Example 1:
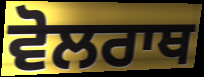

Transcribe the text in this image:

ਵੋਲਰਾਥ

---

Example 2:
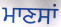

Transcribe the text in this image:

ਮਾਣਸਾਂ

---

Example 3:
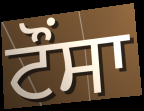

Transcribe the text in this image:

ਟੌਂਸਾ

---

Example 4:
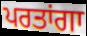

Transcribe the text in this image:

ਪਰਤਾਂਗਾ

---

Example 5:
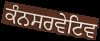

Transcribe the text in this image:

ਕੰਨਸਰਵੇਟਿਵ